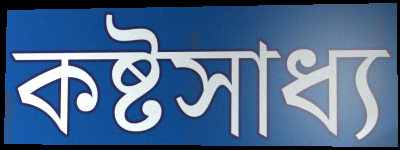
কষ্টসাধ্য